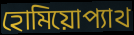
হোমিয়োপ্যাথ